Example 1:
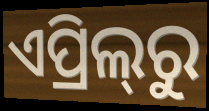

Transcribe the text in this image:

ଏପ୍ରିଲ୍‌ରୁ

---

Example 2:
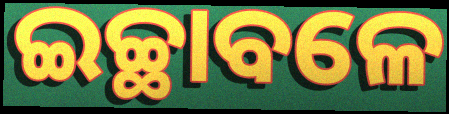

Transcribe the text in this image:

ଇଚ୍ଛାବଳେ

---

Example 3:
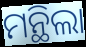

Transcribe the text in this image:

ମନ୍ଥିଲା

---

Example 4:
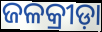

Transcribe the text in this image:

ଜଳକ୍ରୀଡ଼ା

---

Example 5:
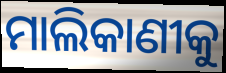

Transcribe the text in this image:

ମାଲିକାଣୀକୁ